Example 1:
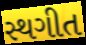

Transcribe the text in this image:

સ્થગીત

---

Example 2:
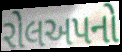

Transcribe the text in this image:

રોલઅપનો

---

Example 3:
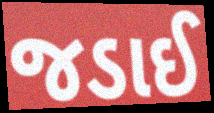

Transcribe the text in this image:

જડાઈ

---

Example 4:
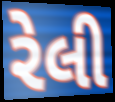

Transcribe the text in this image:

રેલી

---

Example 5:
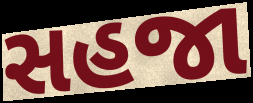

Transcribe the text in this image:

સહજા